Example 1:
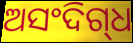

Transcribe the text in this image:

ଅସଂଦିଗ୍‌ଧ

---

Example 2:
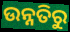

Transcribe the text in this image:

ଉନ୍ନତିରୁ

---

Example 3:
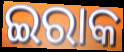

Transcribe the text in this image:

ଇରାକ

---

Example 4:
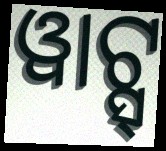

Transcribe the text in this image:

ୱାଟ୍ସ୍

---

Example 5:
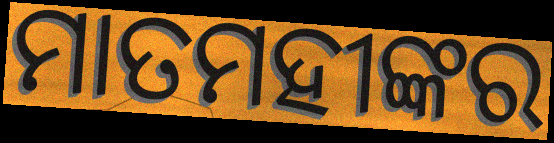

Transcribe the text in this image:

ମାତମହୀଙ୍କର